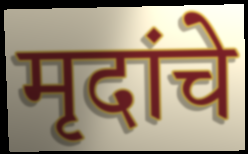
मृदांचे